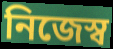
নিজেস্ব